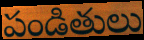
పండితులు